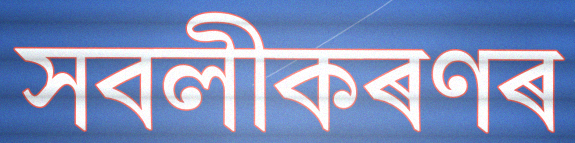
সবলীকৰণৰ